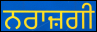
ਨਰਾਜ਼ਗੀ